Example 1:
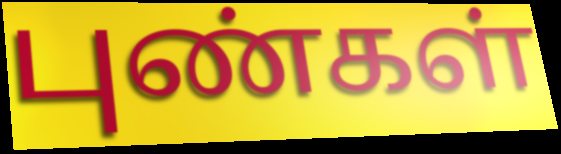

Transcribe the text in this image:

புண்கள்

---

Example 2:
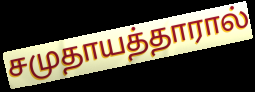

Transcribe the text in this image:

சமுதாயத்தாரால்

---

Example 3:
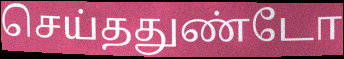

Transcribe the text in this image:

செய்ததுண்டோ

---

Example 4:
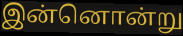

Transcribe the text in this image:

இன்னொன்று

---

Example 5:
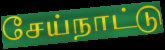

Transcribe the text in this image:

சேய்நாட்டு